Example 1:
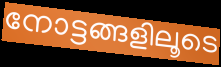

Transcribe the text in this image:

നോട്ടങ്ങളിലൂടെ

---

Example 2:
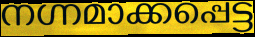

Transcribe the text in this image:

നഗ്നമാക്കപ്പെട്ട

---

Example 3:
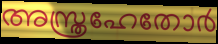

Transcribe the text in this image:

അസ്ത്രഹേതോർ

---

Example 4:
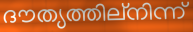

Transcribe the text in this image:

ദൗത്യത്തില്നിന്ന്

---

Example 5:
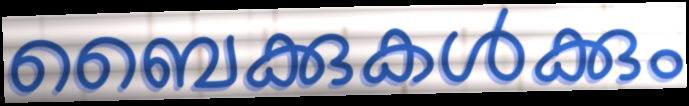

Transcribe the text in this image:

ബൈക്കുകൾക്കും